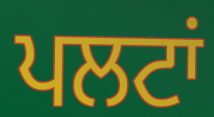
ਪਲਟਾਂ